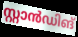
സ്റ്റാൻഡിങ്